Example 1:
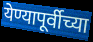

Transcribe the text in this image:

येण्यापूर्वीच्या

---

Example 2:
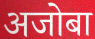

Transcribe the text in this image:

अजोबा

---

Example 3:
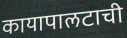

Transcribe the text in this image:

कायापालटाची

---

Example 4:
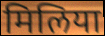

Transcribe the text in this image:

मिलिया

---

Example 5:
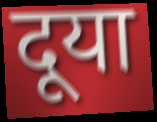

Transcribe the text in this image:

दूया